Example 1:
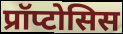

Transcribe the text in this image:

प्रॉप्टोसिस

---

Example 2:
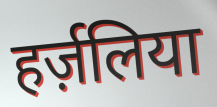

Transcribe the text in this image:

हर्ज़लिया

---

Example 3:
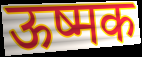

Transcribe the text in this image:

ऊष्मक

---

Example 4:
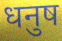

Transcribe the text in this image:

धनुष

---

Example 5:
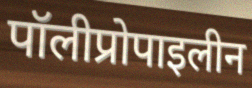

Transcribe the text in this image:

पॉलीप्रोपाइलीन